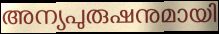
അന്യപുരുഷനുമായി